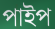
পাইপ